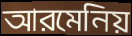
আরমেনিয়